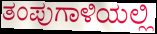
ತಂಪುಗಾಳಿಯಲ್ಲಿ